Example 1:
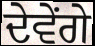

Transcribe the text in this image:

ਦੇਵੇਂਗੇ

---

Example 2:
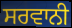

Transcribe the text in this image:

ਸਰਵਾਨੀ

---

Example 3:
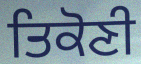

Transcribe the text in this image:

ਤਿਕੋਣੀ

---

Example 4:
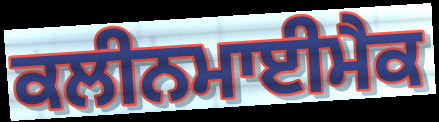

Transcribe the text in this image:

ਕਲੀਨਮਾਈਮੈਕ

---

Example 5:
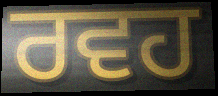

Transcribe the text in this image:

ਰਵਹ